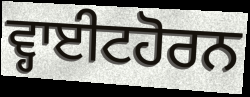
ਵ੍ਹਾਈਟਹੋਰਨ